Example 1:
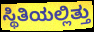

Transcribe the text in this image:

ಸ್ಥಿತಿಯಲ್ಲಿತ್ತು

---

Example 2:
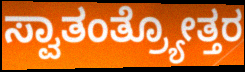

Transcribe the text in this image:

ಸ್ವಾತಂತ್ರ್ಯೋತ್ತರ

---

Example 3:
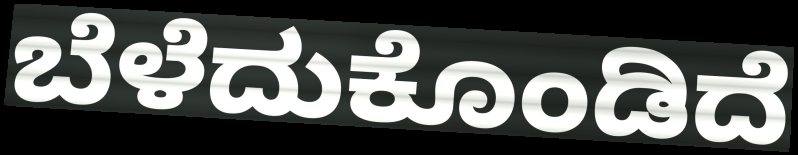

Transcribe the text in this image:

ಬೆಳೆದುಕೊಂಡಿದೆ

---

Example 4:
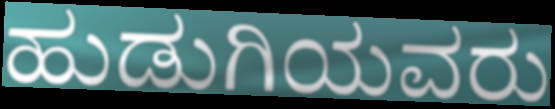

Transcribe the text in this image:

ಹುಡುಗಿಯವರು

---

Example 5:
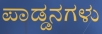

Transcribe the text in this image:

ಪಾಡ್ಡನಗಳು